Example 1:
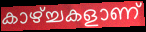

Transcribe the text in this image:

കാഴ്ച്ചകളാണ്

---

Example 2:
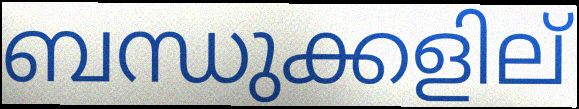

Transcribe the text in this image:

ബന്ധുക്കളില്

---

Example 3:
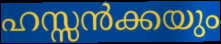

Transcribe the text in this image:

ഹസ്സൻക്കയും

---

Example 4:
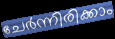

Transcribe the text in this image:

ചേർന്നിരിക്കാം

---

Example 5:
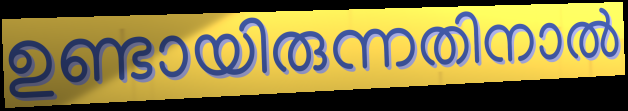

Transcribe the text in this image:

ഉണ്ടായിരുന്നതിനാൽ